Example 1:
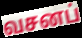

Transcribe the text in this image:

வசனப்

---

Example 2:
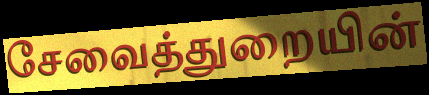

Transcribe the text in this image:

சேவைத்துறையின்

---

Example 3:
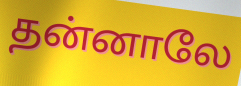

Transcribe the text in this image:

தன்னாலே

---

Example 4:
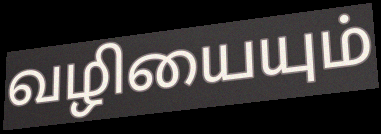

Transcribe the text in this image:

வழியையும்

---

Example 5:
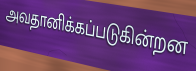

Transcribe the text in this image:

அவதானிக்கப்படுகின்றன